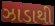
ઝાડાથી